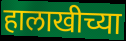
हालाखीच्या